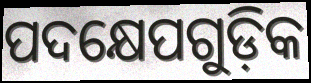
ପଦକ୍ଷେପଗୁଡ଼ିକ